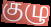
குழு